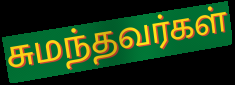
சுமந்தவர்கள்